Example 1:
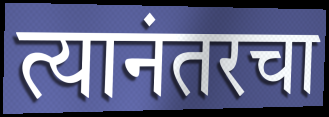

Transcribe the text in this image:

त्यानंतरचा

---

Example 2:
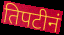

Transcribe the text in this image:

तिपटीनं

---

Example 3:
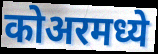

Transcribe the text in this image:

कोअरमध्ये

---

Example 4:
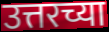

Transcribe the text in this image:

उत्तरच्या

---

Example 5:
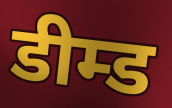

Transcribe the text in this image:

डीम्ड